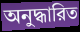
অনুদ্ধারিত